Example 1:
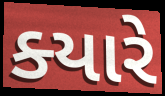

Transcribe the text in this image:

ક્‍યારે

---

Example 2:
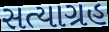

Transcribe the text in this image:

સત્‍યાગ્રહ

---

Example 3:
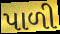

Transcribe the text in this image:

પાળી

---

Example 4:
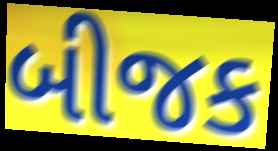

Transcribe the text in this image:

બીજક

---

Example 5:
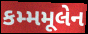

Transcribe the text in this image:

કમ્મમૂલેન